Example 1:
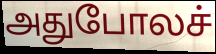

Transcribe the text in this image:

அதுபோலச்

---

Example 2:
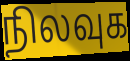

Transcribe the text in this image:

நிலவுக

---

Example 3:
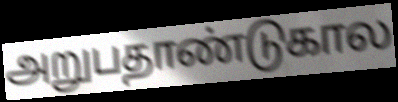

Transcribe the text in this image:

அறுபதாண்டுகால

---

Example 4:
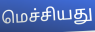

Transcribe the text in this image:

மெச்சியது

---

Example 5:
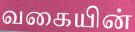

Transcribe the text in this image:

வகையின்